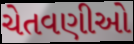
ચેતવણીઓ